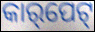
କାର୍‌ପେଟ୍